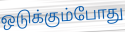
ஒடுக்கும்போது